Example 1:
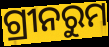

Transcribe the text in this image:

ଗ୍ରୀନରୁମ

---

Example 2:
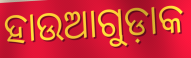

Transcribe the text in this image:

ହାଉଆଗୁଡ଼ାକ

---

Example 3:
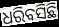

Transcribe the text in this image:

ଧରିବସିଛି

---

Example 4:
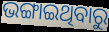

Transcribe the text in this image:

ଭଙ୍ଗାଇଥିବାରୁ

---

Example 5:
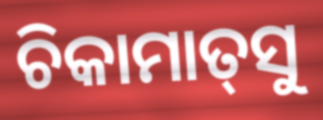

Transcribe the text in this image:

ଚିକାମାତ୍‌ସୁ